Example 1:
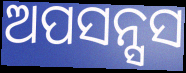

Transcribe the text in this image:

ଅପସନ୍ସସ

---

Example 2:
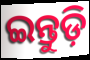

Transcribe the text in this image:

ଇନ୍ତୁଡ଼ି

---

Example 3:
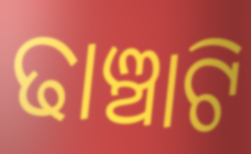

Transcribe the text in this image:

ଢାଞ୍ଚାଟି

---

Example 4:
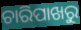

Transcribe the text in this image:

ଚାରିପାଖରୁ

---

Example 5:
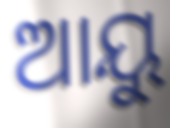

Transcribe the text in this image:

ଆୟୁ